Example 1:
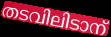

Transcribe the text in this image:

തടവിലിടാന്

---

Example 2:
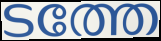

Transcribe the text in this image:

ടത്തേ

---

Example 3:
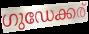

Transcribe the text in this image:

ഗുഡേക്കര്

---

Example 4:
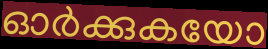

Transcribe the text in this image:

ഓർക്കുകയോ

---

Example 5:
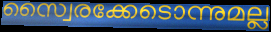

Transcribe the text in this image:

സ്വൈരക്കേടൊന്നുമല്ല